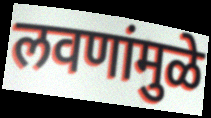
लवणांमुळे